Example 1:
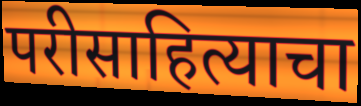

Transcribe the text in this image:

परीसाहित्याचा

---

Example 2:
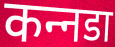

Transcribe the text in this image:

कन्नडा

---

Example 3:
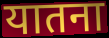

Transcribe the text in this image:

यातना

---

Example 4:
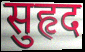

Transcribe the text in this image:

सुहृद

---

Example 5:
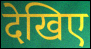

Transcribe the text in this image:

देखिए